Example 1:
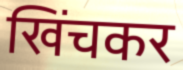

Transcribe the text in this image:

खिंचकर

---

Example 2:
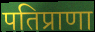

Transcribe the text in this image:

पतिप्राणा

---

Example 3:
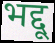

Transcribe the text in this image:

भद्दू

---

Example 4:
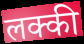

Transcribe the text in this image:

लक्की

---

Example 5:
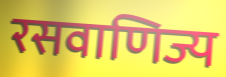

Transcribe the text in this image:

रसवाणिज्य